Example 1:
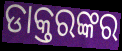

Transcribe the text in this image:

ଡାକ୍ତରଙ୍କର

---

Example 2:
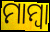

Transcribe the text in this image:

ମାମ୍ଵା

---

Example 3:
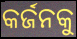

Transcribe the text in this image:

କର୍ଜନକୁ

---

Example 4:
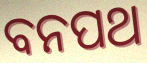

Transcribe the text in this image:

ବନପଥ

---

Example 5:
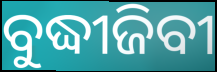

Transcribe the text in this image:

ବୁଦ୍ଧୀଜିବୀ